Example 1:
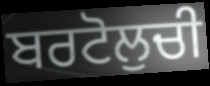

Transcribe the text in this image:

ਬਰਟੋਲੁਚੀ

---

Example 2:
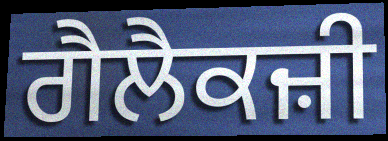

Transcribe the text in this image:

ਗੈਲੈਕਜ਼ੀ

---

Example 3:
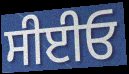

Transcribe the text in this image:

ਸੀਈਓ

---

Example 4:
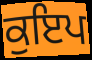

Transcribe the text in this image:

ਕੁਇਪ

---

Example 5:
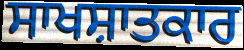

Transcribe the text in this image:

ਸਾਖਸ਼ਾਤਕਾਰ